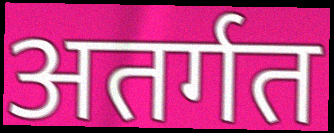
अतर्गत